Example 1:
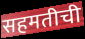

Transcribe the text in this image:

सहमतीची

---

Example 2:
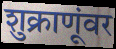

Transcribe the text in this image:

शुक्राणूंवर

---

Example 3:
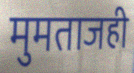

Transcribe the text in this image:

मुमताजही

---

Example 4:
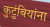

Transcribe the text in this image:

कुटुंबियांना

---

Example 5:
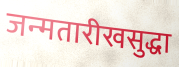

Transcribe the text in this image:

जन्मतारीखसुद्धा